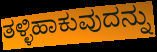
ತಳ್ಳಿಹಾಕುವುದನ್ನು